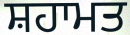
ਸ਼ਹਾਮਤ